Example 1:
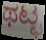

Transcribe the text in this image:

ಥಟ್ಟ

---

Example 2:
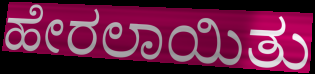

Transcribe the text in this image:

ಹೇರಲಾಯಿತು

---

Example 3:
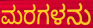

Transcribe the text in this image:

ಮರಗಳನು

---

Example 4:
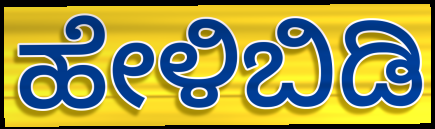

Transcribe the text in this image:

ಹೇಳಿಬಿಡಿ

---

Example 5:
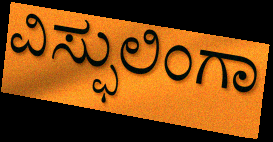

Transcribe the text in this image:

ವಿಸ್ಫುಲಿಂಗಾ